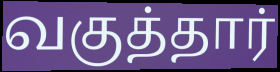
வகுத்தார்